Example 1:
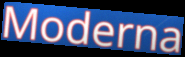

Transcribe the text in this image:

Moderna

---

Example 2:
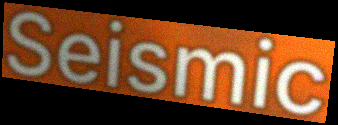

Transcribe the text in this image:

Seismic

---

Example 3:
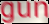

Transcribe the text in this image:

gun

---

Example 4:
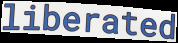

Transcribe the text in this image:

liberated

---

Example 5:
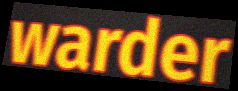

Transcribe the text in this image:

warder